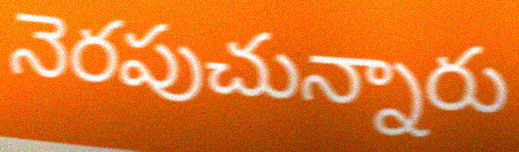
నెరపుచున్నారు